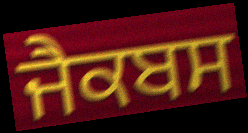
ਜੈਕਬਸ